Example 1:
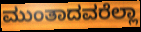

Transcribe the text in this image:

ಮುಂತಾದವರೆಲ್ಲಾ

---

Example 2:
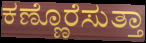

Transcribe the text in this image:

ಕಣ್ಣೊರೆಸುತ್ತಾ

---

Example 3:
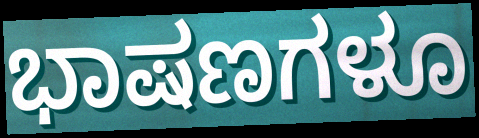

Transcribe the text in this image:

ಭಾಷಣಗಳೂ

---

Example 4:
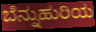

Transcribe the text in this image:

ಬೆನ್ನುಹುರಿಯ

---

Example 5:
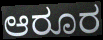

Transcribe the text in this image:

ಆರೂರ